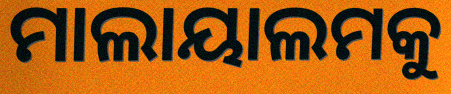
ମାଲାୟାଲମକୁ